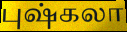
புஷ்கலா